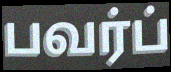
பவர்ப்